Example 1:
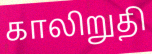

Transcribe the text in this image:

காலிறுதி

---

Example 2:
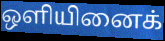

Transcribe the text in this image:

ஒளியினைக்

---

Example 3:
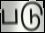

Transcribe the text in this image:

படு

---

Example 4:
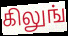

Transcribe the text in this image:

கிலுங்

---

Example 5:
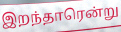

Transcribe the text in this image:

இறந்தாரென்று